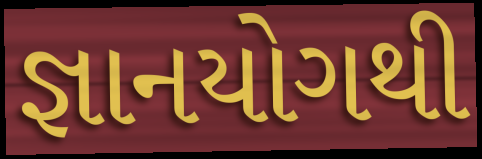
જ્ઞાનયોગથી